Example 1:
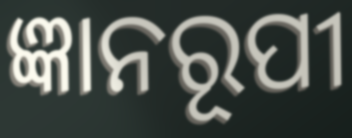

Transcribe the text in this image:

ଜ୍ଞାନରୂପୀ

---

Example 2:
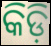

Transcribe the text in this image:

କିଡ଼ି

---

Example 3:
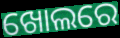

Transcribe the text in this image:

ଖୋଲରେ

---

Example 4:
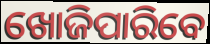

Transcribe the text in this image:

ଖୋଜିପାରିବେ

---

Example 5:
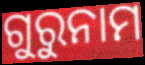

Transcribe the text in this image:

ଗୁରୁନାମ